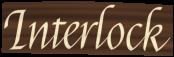
Interlock